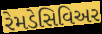
રેમડેસિવિઅર